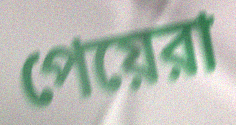
পেয়েরা